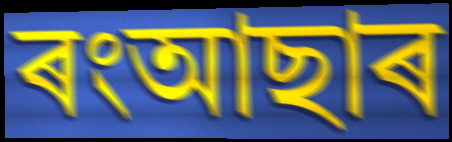
ৰংআছাৰ